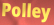
Polley